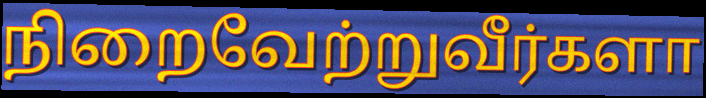
நிறைவேற்றுவீர்களா